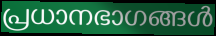
പ്രധാനഭാഗങ്ങൾ